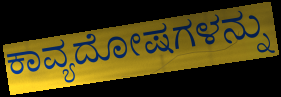
ಕಾವ್ಯದೋಷಗಳನ್ನು